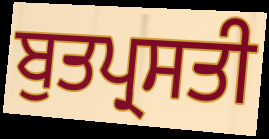
ਬੁਤਪ੍ਰਸਤੀ